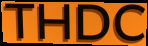
THDC